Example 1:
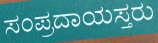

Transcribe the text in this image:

ಸಂಪ್ರದಾಯಸ್ತರು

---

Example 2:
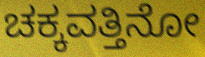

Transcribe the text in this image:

ಚಕ್ಕವತ್ತಿನೋ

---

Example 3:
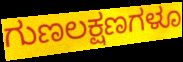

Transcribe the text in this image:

ಗುಣಲಕ್ಷಣಗಳೂ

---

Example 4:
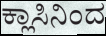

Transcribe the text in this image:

ಕ್ಲಾಸಿನಿಂದ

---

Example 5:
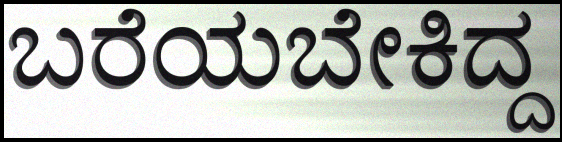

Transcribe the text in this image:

ಬರೆಯಬೇಕಿದ್ದ